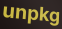
unpkg